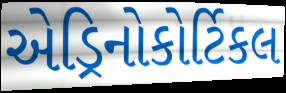
એડ્રિનોકોર્ટિકલ